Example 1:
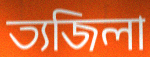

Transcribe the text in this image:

ত্যজিলা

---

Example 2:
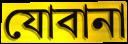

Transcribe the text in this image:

যোবানা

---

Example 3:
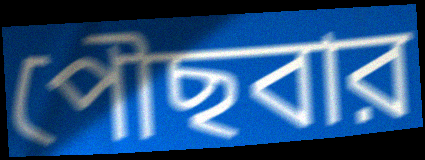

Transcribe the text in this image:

পৌছবার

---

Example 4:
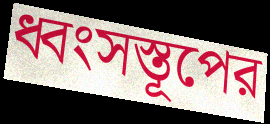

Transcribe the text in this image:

ধ্বংসস্তূপের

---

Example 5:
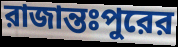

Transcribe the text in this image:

রাজান্তঃপুরের